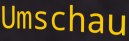
Umschau